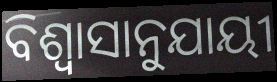
ବିଶ୍ୱାସାନୁଯାୟୀ